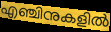
എഞ്ചിനുകളിൽ